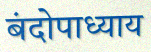
बंदोपाध्‍याय